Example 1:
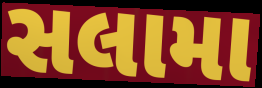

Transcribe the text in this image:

સલામા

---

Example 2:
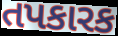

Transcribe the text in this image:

તપકારક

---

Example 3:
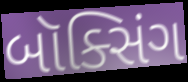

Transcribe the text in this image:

બૉક્સિંગ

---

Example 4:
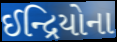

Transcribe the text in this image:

ઈન્દ્રિયોના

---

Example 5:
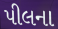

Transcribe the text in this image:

પીલના